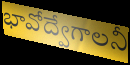
భావోద్వేగాలనీ